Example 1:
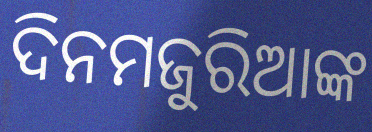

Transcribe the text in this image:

ଦିନମଜୁରିଆଙ୍କ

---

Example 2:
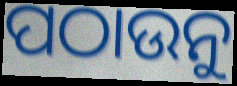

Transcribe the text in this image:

ପଠାଉନୁ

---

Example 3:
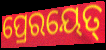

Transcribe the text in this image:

ପ୍ରେରୟେତ୍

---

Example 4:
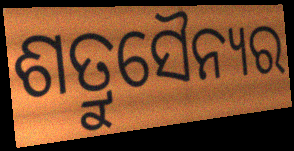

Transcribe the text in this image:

ଶତ୍ରୁସୈନ୍ୟର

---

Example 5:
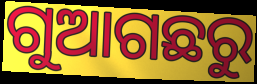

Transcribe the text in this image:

ଗୁଆଗଛରୁ